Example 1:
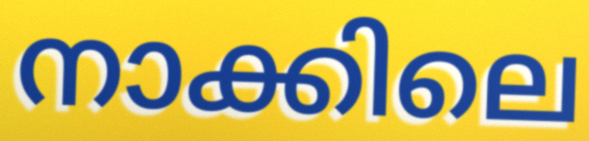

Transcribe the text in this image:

നാക്കിലെ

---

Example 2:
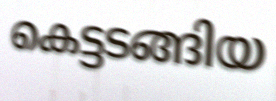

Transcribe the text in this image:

കെട്ടടങ്ങിയ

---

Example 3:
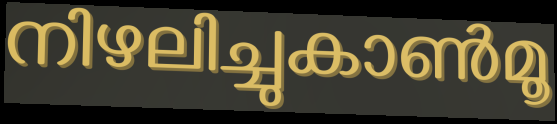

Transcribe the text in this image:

നിഴലിച്ചുകാൺമൂ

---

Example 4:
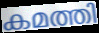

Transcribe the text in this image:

കമത്തി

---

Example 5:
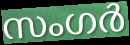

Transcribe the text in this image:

സംഗർ